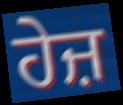
ਹੇਜ਼